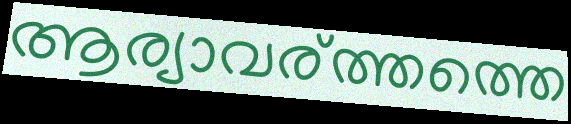
ആര്യാവര്ത്തത്തെ